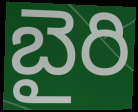
బైరి